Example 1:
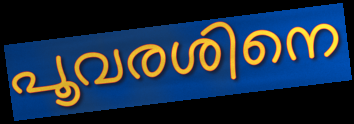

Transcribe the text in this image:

പൂവരശിനെ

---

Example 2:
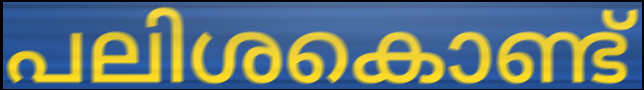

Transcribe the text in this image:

പലിശകൊണ്ട്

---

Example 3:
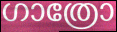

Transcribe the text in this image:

ഗാത്രോ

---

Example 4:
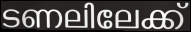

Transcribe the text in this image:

ടണലിലേക്ക്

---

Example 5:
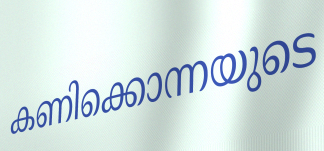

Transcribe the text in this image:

കണിക്കൊന്നയുടെ